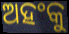
ଅହଂକୁ